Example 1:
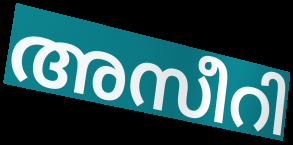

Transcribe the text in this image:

അസീറി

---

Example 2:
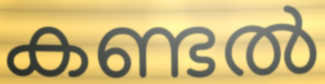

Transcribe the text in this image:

കണ്ടൽ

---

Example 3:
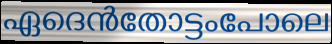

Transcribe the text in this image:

ഏദെൻതോട്ടംപോലെ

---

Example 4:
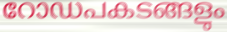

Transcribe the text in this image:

റോഡപകടങ്ങളും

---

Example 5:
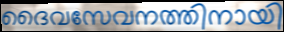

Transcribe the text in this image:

ദൈവസേവനത്തിനായി